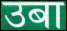
उबा